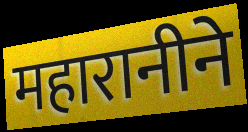
महारानीने